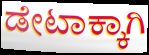
ಡೇಟಾಕ್ಕಾಗಿ